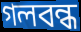
গলবন্ধ